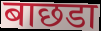
बाछडा